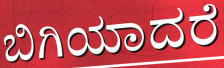
ಬಿಗಿಯಾದರೆ